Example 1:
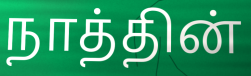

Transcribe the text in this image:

நாத்தின்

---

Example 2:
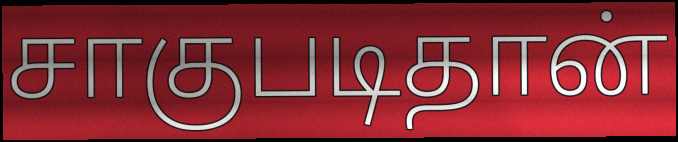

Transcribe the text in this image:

சாகுபடிதான்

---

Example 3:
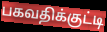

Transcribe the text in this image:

பகவதிக்குட்டி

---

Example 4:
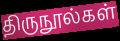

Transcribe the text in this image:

திருநூல்கள்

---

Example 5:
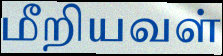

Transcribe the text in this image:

மீறியவள்